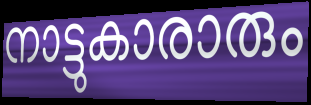
നാട്ടുകാരാരും